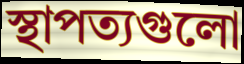
স্থাপত্যগুলো